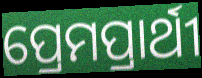
ପ୍ରେମପ୍ରାର୍ଥୀ